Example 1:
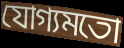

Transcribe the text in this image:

যোগ্যমতো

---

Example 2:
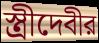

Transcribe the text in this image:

স্ত্রীদেবীর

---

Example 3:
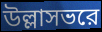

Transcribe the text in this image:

উল্লাসভরে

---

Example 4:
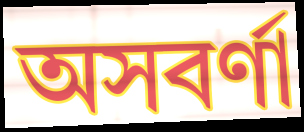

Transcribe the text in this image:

অসবর্ণা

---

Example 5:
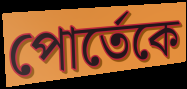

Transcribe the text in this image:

পোর্তেকে